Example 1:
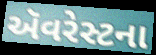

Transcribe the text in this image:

ઍૅવરેસ્ટના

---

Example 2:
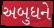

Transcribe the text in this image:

અબુધને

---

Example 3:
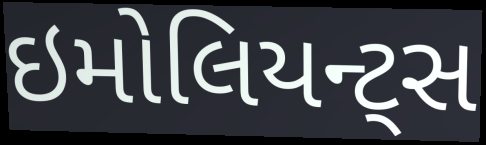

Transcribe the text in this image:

ઇમોલિયન્ટ્સ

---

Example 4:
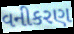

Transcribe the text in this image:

વનીકરણ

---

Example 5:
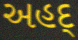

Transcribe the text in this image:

અહદ્